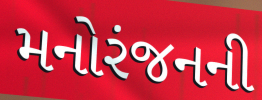
મનોરંજનની